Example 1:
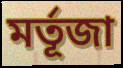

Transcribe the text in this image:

মর্তূজা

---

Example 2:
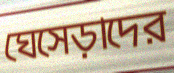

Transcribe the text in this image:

ঘেসেড়াদের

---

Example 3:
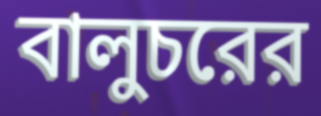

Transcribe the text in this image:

বালুচরের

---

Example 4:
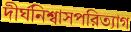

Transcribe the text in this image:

দীর্ঘনিশ্বাসপরিত্যাগ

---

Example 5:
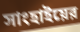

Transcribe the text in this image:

সাংহাইয়ের